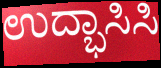
ಉದ್ಭಾಸಿಸಿ